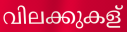
വിലക്കുകള്